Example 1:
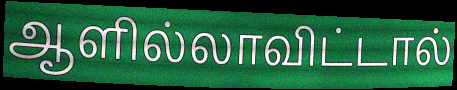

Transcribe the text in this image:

ஆளில்லாவிட்டால்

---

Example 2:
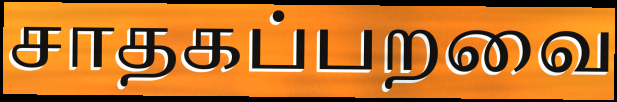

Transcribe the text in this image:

சாதகப்பறவை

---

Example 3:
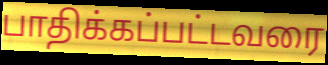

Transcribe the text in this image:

பாதிக்கப்பட்டவரை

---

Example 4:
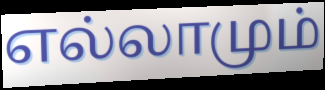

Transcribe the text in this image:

எல்லாமும்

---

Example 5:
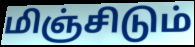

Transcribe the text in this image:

மிஞ்சிடும்